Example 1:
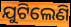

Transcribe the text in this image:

ଯୁଟିଲେଣି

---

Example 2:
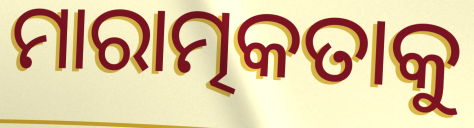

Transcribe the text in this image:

ମାରାତ୍ମକତାକୁ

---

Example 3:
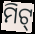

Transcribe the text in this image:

ମିଟ୍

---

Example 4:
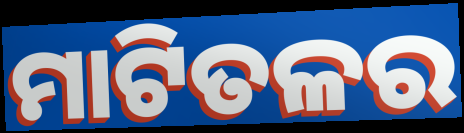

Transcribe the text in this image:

ମାଟିତଳର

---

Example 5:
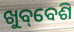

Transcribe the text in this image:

ଖୁବ୍‌ବେଶି